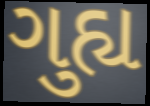
ગુહ્ય